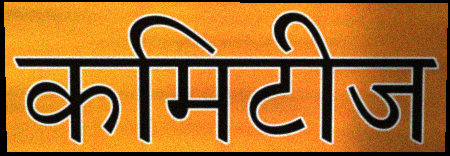
कमिटीज